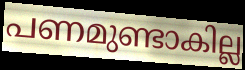
പണമുണ്ടാകില്ല